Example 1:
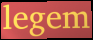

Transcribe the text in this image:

legem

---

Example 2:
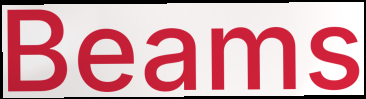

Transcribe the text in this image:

Beams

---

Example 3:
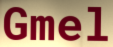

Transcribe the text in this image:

Gmel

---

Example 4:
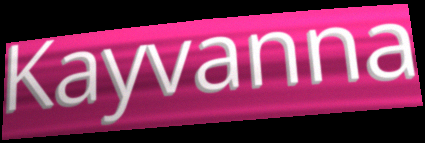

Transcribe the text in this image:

Kayvanna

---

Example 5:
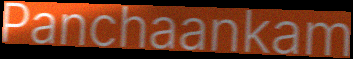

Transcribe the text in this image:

Panchaankam